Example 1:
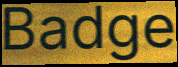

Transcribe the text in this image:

Badge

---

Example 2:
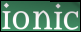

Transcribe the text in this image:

ionic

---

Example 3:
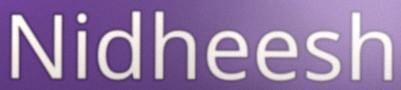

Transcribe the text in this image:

Nidheesh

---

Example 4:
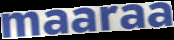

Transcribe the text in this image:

maaraa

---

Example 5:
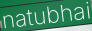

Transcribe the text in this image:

natubhai